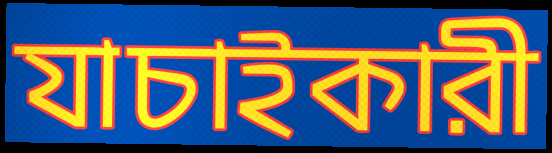
যাচাইকারী